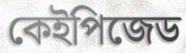
কেইপিজেড